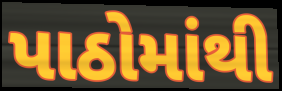
પાઠોમાંથી